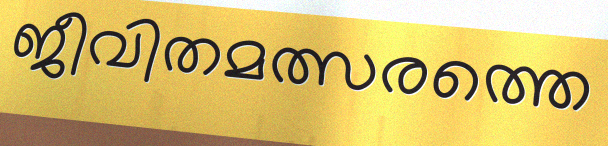
ജീവിതമത്സരത്തെ